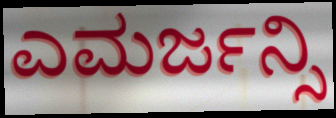
ಎಮರ್ಜನ್ಸಿ